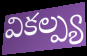
వికల్ప్య